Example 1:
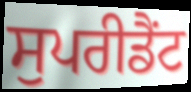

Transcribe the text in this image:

ਸੁਪਰੀਡੈਂਟ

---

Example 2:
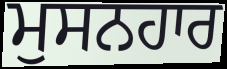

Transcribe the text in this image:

ਮੁਸਨਹਾਰ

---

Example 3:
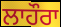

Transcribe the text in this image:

ਲਾਹੌਰਾ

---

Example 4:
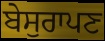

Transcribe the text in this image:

ਬੇਸੁਰਾਪਣ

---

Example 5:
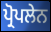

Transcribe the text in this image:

ਪ੍ਰੋਪਲੇਨ